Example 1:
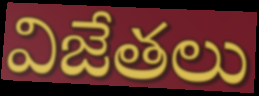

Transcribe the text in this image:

విజేతలు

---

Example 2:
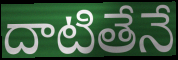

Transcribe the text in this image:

దాటితేనే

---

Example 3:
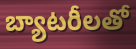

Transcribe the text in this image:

బ్యాటరీలతో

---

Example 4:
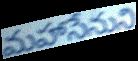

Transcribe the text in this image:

మహాసేనుని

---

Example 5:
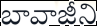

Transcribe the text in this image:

బావాజీని